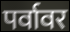
पर्वावर